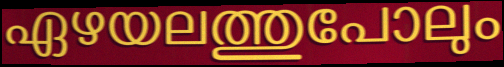
ഏഴയലത്തുപോലും